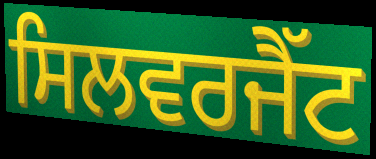
ਸਿਲਵਰਜੈੱਟ